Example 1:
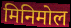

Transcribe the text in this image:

मिनिमोल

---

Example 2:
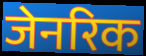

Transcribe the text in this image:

जेनरिक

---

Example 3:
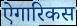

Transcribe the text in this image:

ऐगारिकस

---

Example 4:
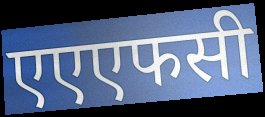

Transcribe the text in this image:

एएएफसी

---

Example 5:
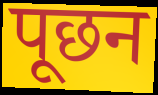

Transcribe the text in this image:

पूछन